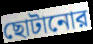
ছোটানোর